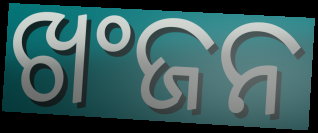
ଖଂଜନ